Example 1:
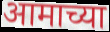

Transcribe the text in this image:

आमाच्या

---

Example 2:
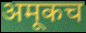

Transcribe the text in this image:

अमूकच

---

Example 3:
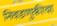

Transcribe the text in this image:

निवडणुकीचा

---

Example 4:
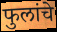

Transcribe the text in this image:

फुलांचे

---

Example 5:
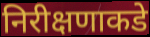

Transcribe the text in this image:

निरीक्षणाकडे